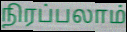
நிரப்பலாம்